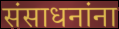
संसाधनांना